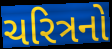
ચરિત્રનો